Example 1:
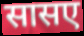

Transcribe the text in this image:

सासए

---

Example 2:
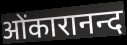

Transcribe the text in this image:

ओंकारानन्द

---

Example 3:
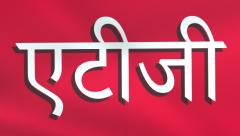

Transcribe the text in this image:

एटीजी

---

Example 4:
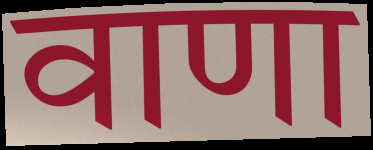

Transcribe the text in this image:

वाणा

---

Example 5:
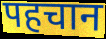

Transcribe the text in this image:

पहचान